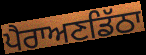
ਪੈਰਾਅਣਡਿੱਠਾ